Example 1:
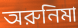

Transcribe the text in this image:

অরুনিমা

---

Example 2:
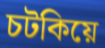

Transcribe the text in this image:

চটকিয়ে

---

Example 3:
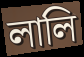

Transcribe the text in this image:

লালি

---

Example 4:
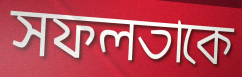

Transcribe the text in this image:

সফলতাকে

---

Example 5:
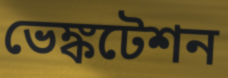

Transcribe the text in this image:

ভেঙ্কটেশন